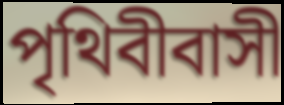
পৃথিবীবাসী